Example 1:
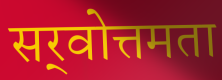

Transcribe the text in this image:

सर्वोत्तमता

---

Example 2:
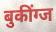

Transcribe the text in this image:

बुकींग्ज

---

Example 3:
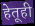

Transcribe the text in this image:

हेतूही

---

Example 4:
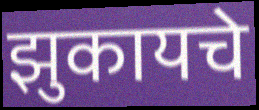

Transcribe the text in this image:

झुकायचे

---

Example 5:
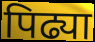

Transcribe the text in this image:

पिढ्या